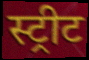
स्ट्रीट